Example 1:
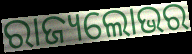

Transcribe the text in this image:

ରାଜ୍ୟଲୋଭର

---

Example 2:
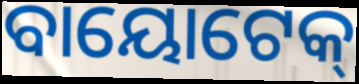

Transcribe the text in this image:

ବାୟୋଟେକ୍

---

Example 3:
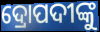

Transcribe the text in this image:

ଦ୍ରୋପଦୀଙ୍କୁ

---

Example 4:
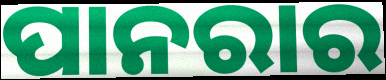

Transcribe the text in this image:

ପାନରାର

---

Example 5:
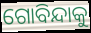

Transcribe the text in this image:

ଗୋବିନ୍ଦାକୁ